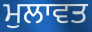
ਮੁਲਾਵਤ